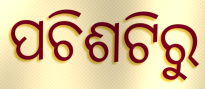
ପଚିଶଟିରୁ